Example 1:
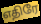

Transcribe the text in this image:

எதிரே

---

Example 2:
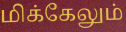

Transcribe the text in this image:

மிக்கேலும்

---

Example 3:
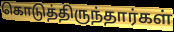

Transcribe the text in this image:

கொடுத்திருந்தார்கள்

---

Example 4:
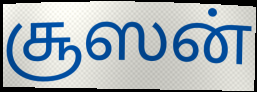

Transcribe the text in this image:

சூஸன்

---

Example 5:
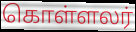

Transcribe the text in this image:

கொள்ளலர்